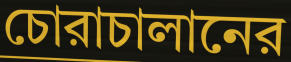
চোরাচালানের